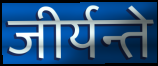
जीर्यन्ते